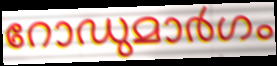
റോഡുമാർഗം